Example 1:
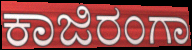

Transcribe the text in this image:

ಕಾಜಿರಂಗಾ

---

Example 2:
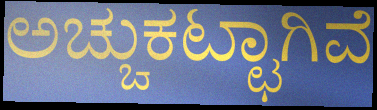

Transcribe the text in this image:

ಅಚ್ಚುಕಟ್ಟಾಗಿವೆ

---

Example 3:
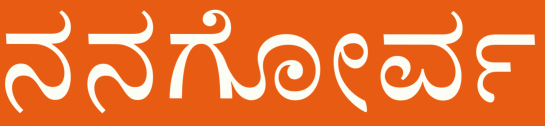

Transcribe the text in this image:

ನನಗೋರ್ವ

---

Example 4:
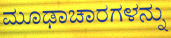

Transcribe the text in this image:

ಮೂಢಾಚಾರಗಳನ್ನು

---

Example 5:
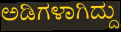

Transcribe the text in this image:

ಅಡಿಗಳಾಗಿದ್ದು